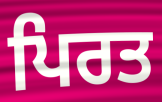
ਪਿਰਤ